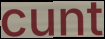
cunt